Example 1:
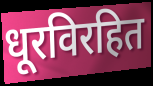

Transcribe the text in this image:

धूरविरहित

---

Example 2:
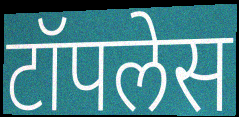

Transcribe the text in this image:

टॉपलेस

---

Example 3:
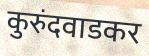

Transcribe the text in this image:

कुरुंदवाडकर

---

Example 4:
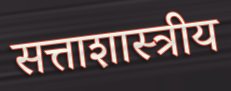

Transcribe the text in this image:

सत्ताशास्त्रीय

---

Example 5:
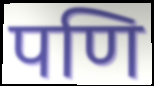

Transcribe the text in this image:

पणि